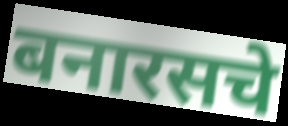
बनारसचे